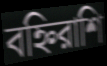
বহ্নিরাশি